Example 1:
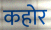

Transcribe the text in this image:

कहोर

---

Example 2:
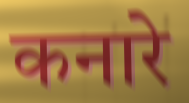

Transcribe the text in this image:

कनारे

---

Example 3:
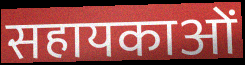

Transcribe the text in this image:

सहायकाओं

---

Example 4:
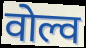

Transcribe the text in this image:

वोल्व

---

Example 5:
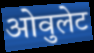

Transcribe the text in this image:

ओवुलेट